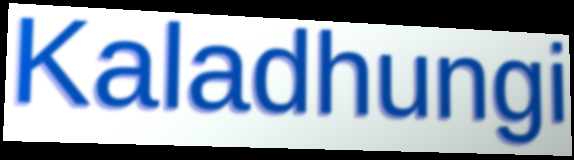
Kaladhungi